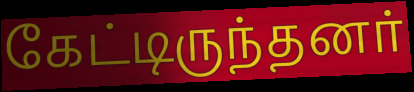
கேட்டிருந்தனர்